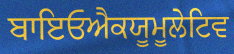
ਬਾਇਓਐਕਯੂਮੂਲੇਟਿਵ